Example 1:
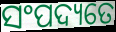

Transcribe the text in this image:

ସଂପଦ୍ୟତେ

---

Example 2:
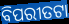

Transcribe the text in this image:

ବିପରୀତଟା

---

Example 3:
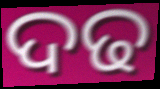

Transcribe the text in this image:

ଦଢ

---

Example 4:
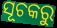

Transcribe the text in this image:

ସୂଚକରୁ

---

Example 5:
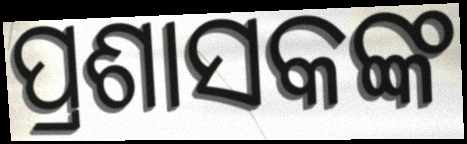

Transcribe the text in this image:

ପ୍ରଶାସକଙ୍କ